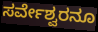
ಸರ್ವೇಶ್ವರನೂ